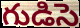
గుడిసె